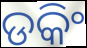
ଡକିଂ